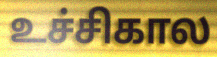
உச்சிகால